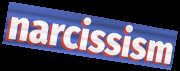
narcissism